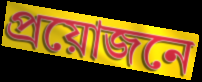
প্রয়োজনে